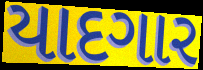
યાદગાર